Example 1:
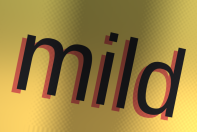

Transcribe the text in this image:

mild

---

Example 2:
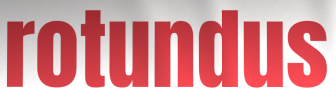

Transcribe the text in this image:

rotundus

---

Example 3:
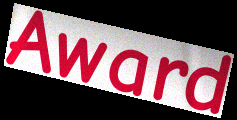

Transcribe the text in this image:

Award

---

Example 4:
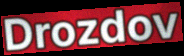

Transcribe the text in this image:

Drozdov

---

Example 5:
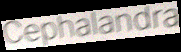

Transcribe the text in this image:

Cephalandra